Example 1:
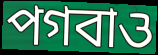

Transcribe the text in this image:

পগবাও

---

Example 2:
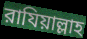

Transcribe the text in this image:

রাযিয়াল্লাহ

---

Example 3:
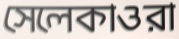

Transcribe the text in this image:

সেলেকাওরা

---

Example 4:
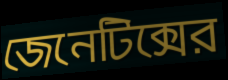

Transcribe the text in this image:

জেনেটিক্সের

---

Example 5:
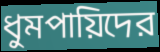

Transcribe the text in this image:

ধুমপায়িদের